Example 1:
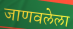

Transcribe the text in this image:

जाणवलेला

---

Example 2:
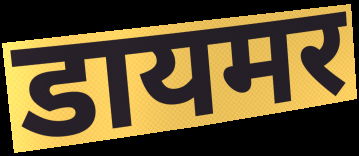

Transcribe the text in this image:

डायमर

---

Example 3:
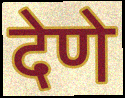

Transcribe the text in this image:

देणे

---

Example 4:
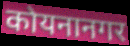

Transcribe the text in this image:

कोयनानगर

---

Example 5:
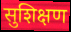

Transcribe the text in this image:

सुशिक्षण